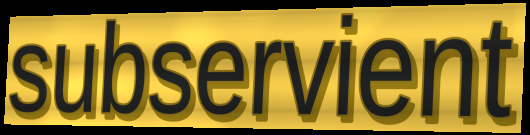
subservient